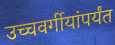
उच्चवर्गीयांपर्यंत